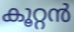
കൂറ്റൻ